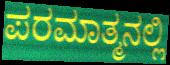
ಪರಮಾತ್ಮನಲ್ಲಿ